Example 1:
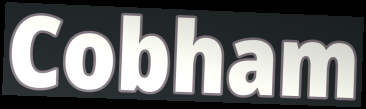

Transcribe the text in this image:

Cobham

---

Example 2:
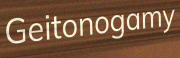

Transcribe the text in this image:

Geitonogamy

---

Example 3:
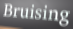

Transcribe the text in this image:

Bruising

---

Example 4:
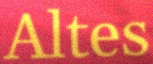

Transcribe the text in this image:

Altes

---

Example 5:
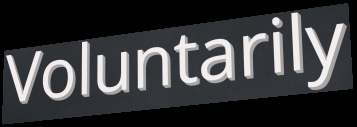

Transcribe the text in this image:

Voluntarily